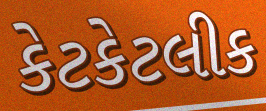
કેટકેટલીક